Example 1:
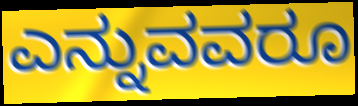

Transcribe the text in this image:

ಎನ್ನುವವರೂ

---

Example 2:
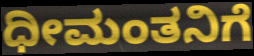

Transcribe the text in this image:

ಧೀಮಂತನಿಗೆ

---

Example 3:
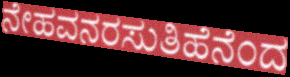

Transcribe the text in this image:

ನೇಹವನರಸುತಿಹೆನೆಂದ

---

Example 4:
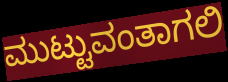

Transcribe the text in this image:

ಮುಟ್ಟುವಂತಾಗಲಿ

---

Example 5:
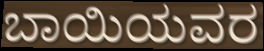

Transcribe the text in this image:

ಬಾಯಿಯವರ